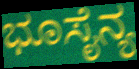
ಭೂಸೈನ್ಯ